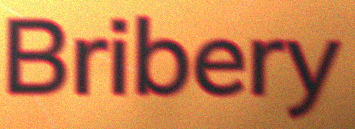
Bribery